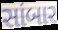
સાંબાર